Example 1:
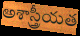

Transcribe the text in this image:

అశాస్త్రీయత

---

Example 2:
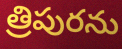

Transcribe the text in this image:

త్రిపురను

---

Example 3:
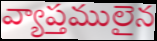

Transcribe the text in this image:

వ్యాప్తములైన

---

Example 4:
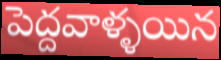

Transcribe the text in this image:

పెద్దవాళ్ళయిన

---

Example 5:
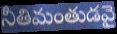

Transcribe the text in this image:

నీతిమంతుడవై